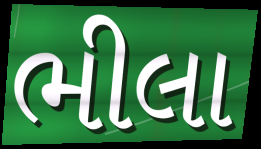
ભીલા